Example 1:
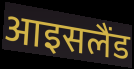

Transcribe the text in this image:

आइसलैंड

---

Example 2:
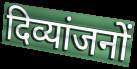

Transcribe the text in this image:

दिव्यांजनों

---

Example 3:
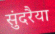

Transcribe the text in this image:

सुंदरैया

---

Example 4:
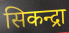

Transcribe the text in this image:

सिकन्द्रा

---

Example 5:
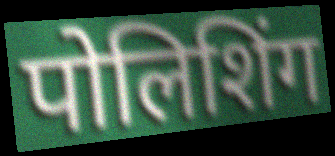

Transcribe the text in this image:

पोलिशिंग